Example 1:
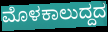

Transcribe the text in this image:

ಮೊಳಕಾಲುದ್ದದ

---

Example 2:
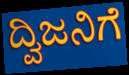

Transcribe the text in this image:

ದ್ವಿಜನಿಗೆ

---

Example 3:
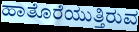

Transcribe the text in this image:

ಹಾತೊರೆಯುತ್ತಿರುವ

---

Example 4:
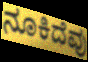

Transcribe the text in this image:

ನೂಕಿದೆವು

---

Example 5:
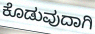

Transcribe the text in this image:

ಕೊಡುವುದಾಗಿ